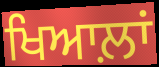
ਖਿਆਲ਼ਾਂ